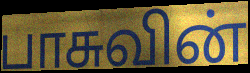
பாசுவின்